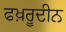
ਫਖ਼ਰੂਦੀਨ